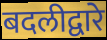
बदलीद्वारे